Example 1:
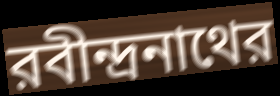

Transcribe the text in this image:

রবীন্দ্রনাথের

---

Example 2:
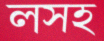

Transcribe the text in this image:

লসহ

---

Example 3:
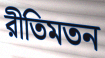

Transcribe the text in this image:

রীতিমতন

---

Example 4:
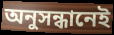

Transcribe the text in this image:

অনুসন্ধানেই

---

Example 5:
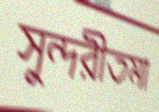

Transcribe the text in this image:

সুন্দরীতমা